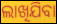
ଲାଖିଯିବା